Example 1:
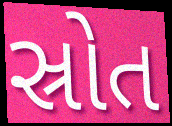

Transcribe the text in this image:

સ્રોત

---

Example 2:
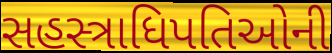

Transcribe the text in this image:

સહસ્ત્રાધિપતિઓની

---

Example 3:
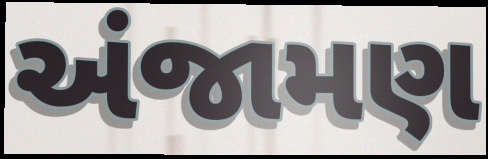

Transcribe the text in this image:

અંજામણ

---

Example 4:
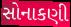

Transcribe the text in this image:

સોનાકણી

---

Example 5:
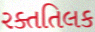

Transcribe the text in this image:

રક્તતિલક